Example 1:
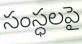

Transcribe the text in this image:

సంస్ధలపై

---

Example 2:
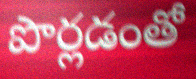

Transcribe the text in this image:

పొర్లడంతో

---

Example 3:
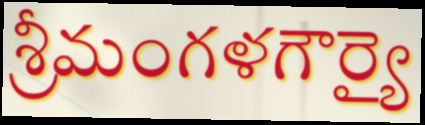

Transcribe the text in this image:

శ్రీమంగళగౌర్యై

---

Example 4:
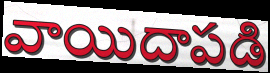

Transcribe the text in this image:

వాయిదాపడి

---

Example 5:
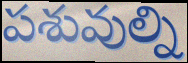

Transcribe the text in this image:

పశువుల్ని